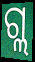
ଗ୍ଲ